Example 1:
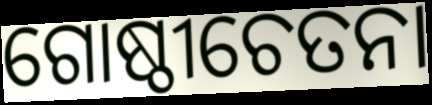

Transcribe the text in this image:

ଗୋଷ୍ଠୀଚେତନା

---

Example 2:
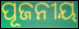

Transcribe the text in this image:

ପୂଜନୀୟ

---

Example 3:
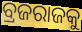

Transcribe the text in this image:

ବ୍ରଜରାଜକୁ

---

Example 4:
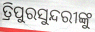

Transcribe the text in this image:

ତ୍ରିପୁରସୁନ୍ଦରୀଙ୍କୁ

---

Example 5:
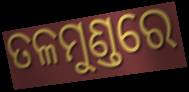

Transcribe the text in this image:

ତଳମୁଣ୍ଡରେ